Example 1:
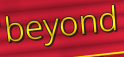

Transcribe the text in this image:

beyond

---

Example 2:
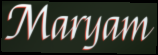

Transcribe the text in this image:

Maryam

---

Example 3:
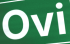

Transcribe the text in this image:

Ovi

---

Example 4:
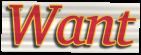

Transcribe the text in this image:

Want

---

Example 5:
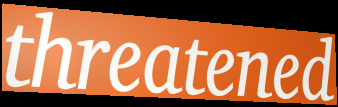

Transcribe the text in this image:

threatened